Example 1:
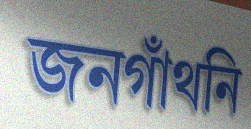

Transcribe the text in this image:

জনগাঁথনি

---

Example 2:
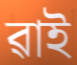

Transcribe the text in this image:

ৱাই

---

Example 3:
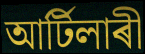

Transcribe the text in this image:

আৰ্টিলাৰী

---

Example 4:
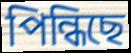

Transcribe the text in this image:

পিন্ধিছে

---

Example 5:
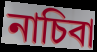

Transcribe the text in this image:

নাচিবা